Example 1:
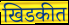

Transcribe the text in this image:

खिडकीत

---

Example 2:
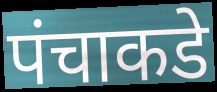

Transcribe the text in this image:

पंचाकडे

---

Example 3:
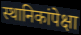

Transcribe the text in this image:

स्थानिकांपेक्षा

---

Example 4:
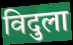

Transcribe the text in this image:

विदुला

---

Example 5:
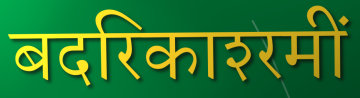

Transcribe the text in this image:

बदरिकाश्रमीं